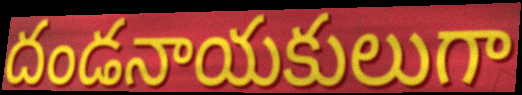
దండనాయకులుగా